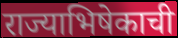
राज्याभिषेकाची